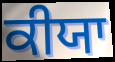
ਕੀਯਾ